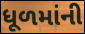
ધૂળમાંની